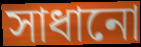
সাধানো